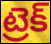
ట్రెక్